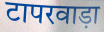
टापरवाड़ा